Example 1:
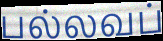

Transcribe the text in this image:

பல்லவப்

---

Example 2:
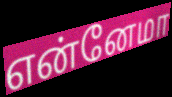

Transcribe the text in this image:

என்னேமா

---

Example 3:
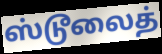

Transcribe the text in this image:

ஸ்டூலைத்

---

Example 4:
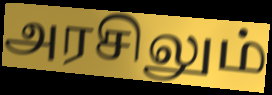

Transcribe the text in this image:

அரசிலும்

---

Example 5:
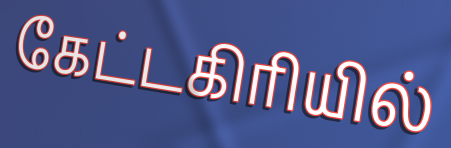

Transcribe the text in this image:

கேட்டகிரியில்